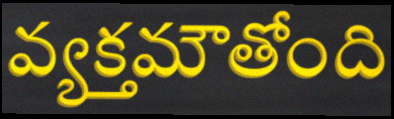
వ్యక్తమౌతోంది